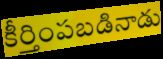
కీర్తింపబడినాడు